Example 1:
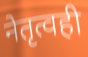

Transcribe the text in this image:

नेतृत्वही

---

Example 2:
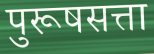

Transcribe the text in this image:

पुरूषसत्ता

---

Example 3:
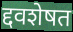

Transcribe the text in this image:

द्दवशेषत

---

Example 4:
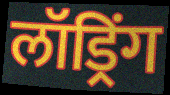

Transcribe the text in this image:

लॉड्रिंग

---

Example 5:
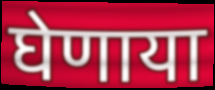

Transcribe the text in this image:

घेणाया